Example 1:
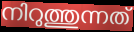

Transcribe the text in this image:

നിറുത്തുന്നത്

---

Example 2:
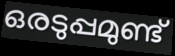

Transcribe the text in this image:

ഒരടുപ്പമുണ്ട്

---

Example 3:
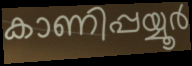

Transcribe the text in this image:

കാണിപ്പയ്യൂർ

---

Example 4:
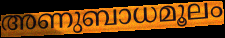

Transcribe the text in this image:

അണുബാധമൂലം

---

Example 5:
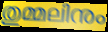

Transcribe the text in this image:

തുമ്മലിനും